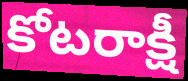
కోటరాక్షీ